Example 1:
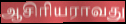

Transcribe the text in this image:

ஆசிரியராவது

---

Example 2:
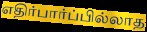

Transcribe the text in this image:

எதிர்பார்ப்பில்லாத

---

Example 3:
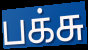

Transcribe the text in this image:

பக்சு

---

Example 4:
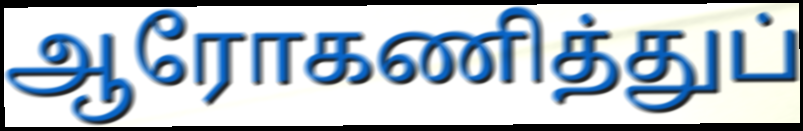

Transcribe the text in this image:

ஆரோகணித்துப்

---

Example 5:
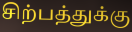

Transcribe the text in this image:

சிற்பத்துக்கு